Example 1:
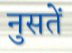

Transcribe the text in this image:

नुसतें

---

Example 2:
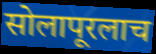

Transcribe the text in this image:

सोलापूरलाच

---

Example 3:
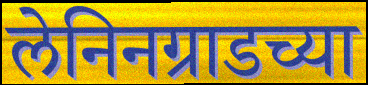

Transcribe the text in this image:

लेनिनग्राडच्या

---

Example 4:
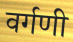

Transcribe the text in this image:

वर्गणी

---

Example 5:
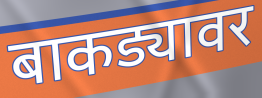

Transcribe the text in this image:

बाकड्यावर